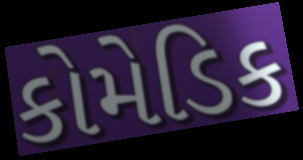
કોમેડિક